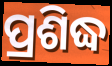
ପ୍ରଶିଦ୍ଧ